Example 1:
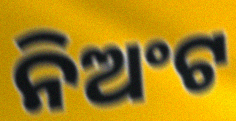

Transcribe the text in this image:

ନିଅଂଟ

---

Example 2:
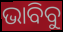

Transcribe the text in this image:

ଭାବିବୁ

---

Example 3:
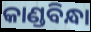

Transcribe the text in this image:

କାଣ୍ଡବିନ୍ଧା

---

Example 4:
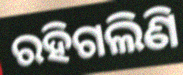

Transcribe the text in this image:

ରହିଗଲିଣି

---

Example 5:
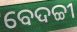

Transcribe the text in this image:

ବେଦଚ୍ଚୀ